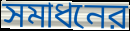
সমাধনের